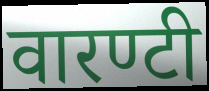
वारण्टी